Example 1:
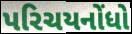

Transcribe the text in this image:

પરિચયનોંધો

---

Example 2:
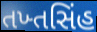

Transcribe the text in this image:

તખ્તસિંહ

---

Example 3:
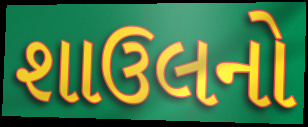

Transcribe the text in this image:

શાઉલનો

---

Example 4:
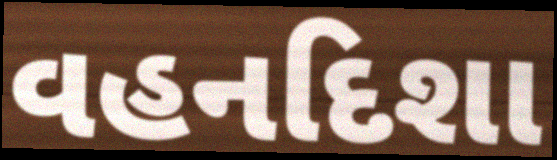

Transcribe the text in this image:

વહનદિશા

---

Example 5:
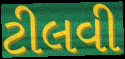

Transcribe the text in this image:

ટીલવી